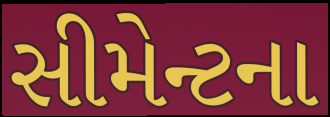
સીમેન્ટના